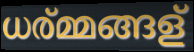
ധര്മ്മങ്ങള്